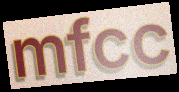
mfcc